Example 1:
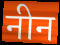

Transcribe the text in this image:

नीन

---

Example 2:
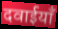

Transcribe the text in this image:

दवाईयाँ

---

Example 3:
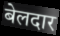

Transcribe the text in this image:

बेलदार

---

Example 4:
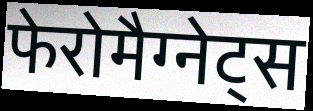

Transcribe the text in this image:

फेरोमैग्नेट्स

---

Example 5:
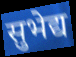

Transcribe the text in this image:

सुभेद्य